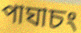
পাঘাচং